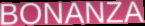
BONANZA